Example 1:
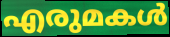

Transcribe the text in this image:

എരുമകൾ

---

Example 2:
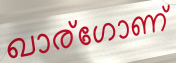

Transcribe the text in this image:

ഖാര്ഗോണ്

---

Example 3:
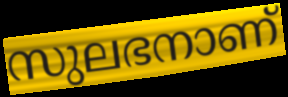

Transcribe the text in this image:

സുലഭനാണ്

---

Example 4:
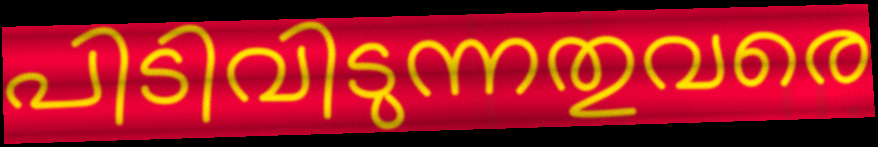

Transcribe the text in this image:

പിടിവിടുന്നതുവരെ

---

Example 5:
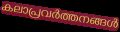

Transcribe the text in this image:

കലാപ്രവർത്തനങ്ങൾ